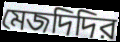
মেজদিদির